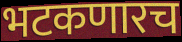
भटकणारच